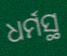
ଧର୍ମସ୍ଥ